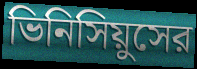
ভিনিসিয়ুসের